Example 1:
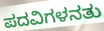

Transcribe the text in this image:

ಪದವಿಗಳನತು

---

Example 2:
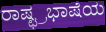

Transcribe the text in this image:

ರಾಷ್ಟ್ರಭಾಷೆಯ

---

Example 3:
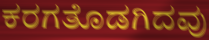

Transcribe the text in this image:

ಕರಗತೊಡಗಿದವು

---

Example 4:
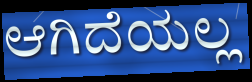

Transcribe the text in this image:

ಆಗಿದೆಯಲ್ಲ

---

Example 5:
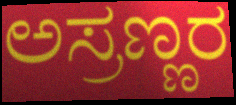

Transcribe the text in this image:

ಅಸ್ರಣ್ಣರ